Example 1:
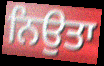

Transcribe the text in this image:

ਨਿਉਤਾ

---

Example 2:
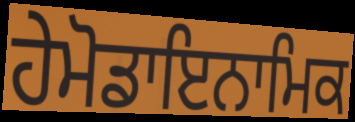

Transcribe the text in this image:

ਹੇਮੋਡਾਇਨਾਮਿਕ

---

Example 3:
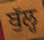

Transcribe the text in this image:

ਬੁੱਲ੍ਹ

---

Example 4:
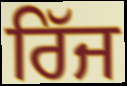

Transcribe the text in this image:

ਰਿੱਜ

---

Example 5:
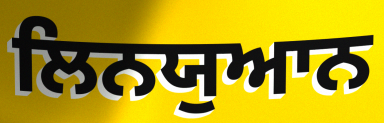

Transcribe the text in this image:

ਲਿਨਯੁਆਨ